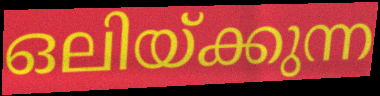
ഒലിയ്ക്കുന്ന